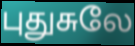
புதுசுலே